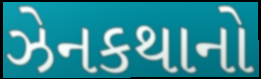
ઝેનકથાનો